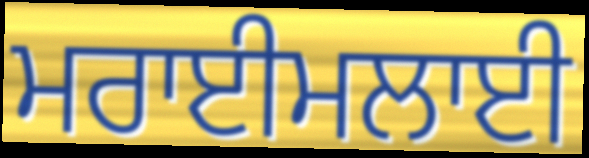
ਮਰਾਈਮਲਾਈ